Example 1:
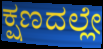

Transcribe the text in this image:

ಕ್ಷಣದಲ್ಲೇ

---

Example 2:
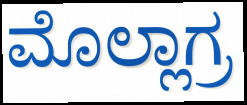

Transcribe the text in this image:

ಮೊಲ್ಲಾಗ್ರ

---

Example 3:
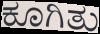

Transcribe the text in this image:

ಕೂಗಿತು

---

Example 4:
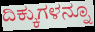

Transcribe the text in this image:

ದಿಕ್ಕುಗಳನ್ನೂ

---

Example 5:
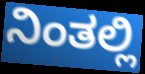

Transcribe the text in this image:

ನಿಂತಲ್ಲಿ